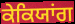
ਕੇਕਿਯਾਂਗ